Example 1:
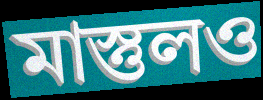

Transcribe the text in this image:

মাস্তুলও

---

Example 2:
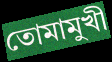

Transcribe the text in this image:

তোমামুখী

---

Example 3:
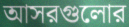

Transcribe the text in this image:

আসরগুলোর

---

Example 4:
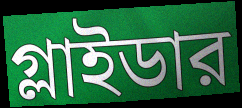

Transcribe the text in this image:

গ্লাইডার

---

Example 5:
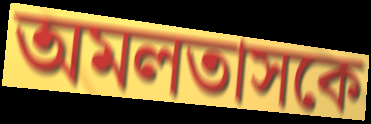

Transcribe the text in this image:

অমলতাসকে